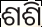
ଶଶି